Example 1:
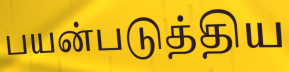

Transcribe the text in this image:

பயன்படுத்திய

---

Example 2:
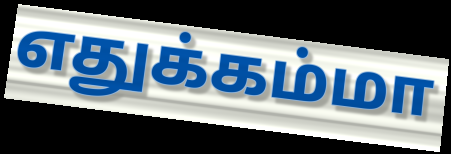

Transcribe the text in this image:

எதுக்கம்மா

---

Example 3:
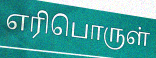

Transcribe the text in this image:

எரிபொருள்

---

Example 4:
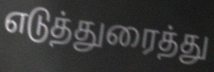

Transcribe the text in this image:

எடுத்துரைத்து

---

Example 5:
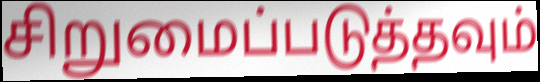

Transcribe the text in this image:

சிறுமைப்படுத்தவும்